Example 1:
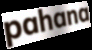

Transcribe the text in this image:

pahana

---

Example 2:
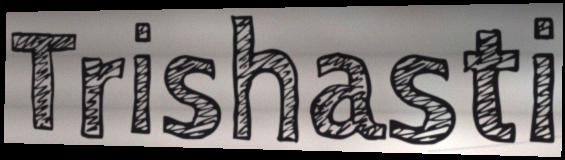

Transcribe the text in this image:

Trishasti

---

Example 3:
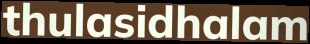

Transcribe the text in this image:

thulasidhalam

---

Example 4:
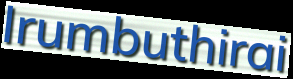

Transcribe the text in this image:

Irumbuthirai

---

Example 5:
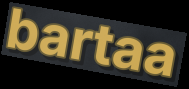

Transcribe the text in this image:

bartaa